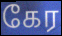
கேர